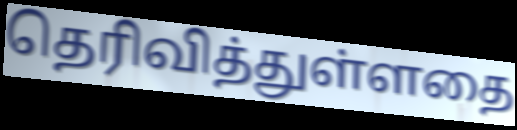
தெரிவித்துள்ளதை